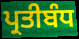
ਪ੍ਰਤੀਬੰਧ